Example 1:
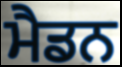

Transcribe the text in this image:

ਮੈਡਨ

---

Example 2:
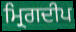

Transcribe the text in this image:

ਮ੍ਰਿਗਦੀਪ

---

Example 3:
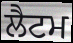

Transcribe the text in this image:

ਲੈਟਮ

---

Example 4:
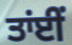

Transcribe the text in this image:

ਤਾਂਈਂ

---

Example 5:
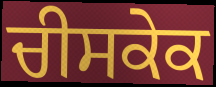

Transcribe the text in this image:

ਚੀਸਕੇਕ